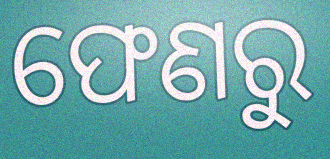
ଫେଣରୁ